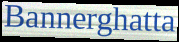
Bannerghatta